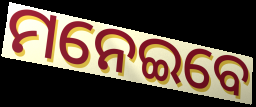
ମନେଇବେ